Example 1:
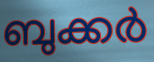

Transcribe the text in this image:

ബുക്കർ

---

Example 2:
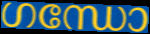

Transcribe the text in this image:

ഗന്ധോ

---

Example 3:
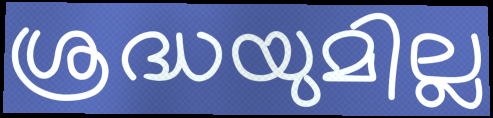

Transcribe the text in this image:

ശ്രദ്ധയുമില്ല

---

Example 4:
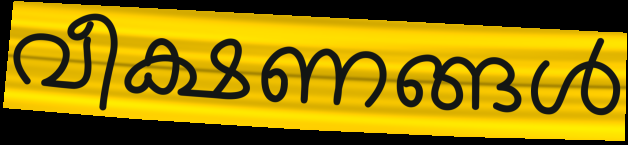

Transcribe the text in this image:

വീക്ഷണങ്ങൾ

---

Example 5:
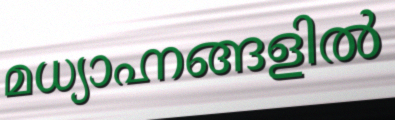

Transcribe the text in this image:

മധ്യാഹ്നങ്ങളിൽ